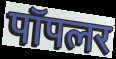
पॉपलर